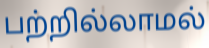
பற்றில்லாமல்